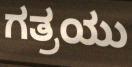
ಗತ್ರಯು